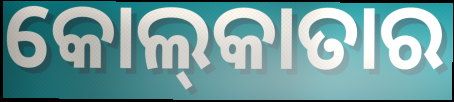
କୋଲ୍‌କାତାର